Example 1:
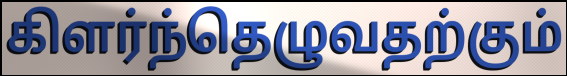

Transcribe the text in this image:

கிளர்ந்தெழுவதற்கும்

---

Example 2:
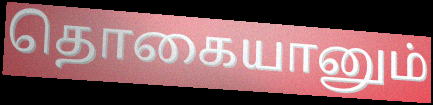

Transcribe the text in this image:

தொகையானும்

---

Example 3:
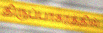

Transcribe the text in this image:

திருப்பாசுரத்தில்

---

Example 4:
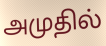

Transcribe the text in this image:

அமுதில்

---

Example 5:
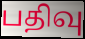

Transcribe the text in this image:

பதிவு